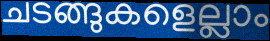
ചടങ്ങുകളെല്ലാം